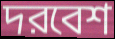
দরবেশ